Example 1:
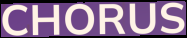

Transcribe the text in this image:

CHORUS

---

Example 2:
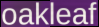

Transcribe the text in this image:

oakleaf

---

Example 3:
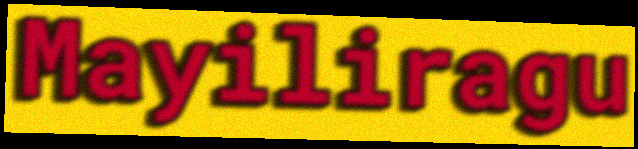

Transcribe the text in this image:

Mayiliragu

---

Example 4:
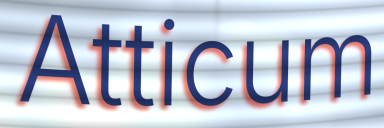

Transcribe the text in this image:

Atticum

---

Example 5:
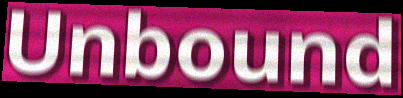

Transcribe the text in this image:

Unbound